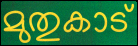
മുതുകാട്